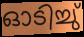
ഓടിച്ചു്